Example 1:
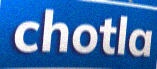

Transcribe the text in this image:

chotla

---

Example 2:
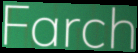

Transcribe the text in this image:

Farch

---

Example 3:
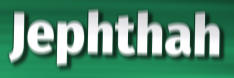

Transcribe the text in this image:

Jephthah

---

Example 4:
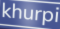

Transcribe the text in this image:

khurpi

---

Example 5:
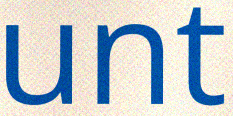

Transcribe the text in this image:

unt